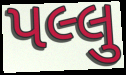
પલ્લુ